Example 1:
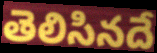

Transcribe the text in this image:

తెలిసినదే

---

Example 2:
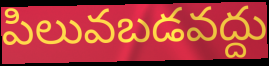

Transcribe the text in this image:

పిలువబడవద్దు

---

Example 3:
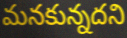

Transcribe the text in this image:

మనకున్నదని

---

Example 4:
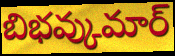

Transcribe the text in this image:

బిభవ్కుమార్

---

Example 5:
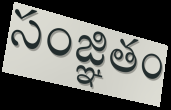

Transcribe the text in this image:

సంజ్ఞితం